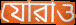
যোৱাও